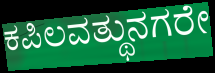
ಕಪಿಲವತ್ಥುನಗರೇ